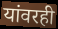
यांवरही